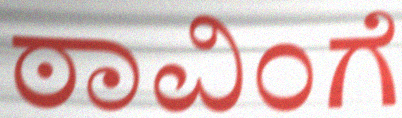
ಠಾವಿಂಗೆ